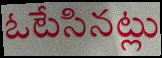
ఓటేసినట్లు